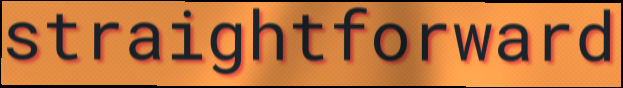
straightforward